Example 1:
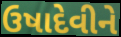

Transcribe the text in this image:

ઉષાદેવીને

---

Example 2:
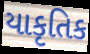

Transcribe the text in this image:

યાકૃતિક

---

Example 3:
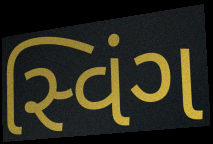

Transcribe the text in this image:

સ્વિંગ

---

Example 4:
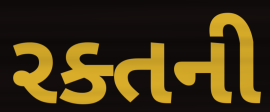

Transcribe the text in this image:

રક્તની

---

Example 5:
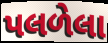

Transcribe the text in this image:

પલળેલા